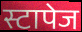
स्टापेज